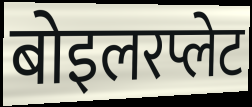
बोइलरप्लेट